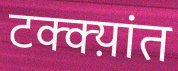
टक्क्य़ांत